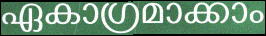
ഏകാഗ്രമാക്കാം